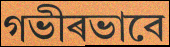
গভীৰভাবে